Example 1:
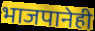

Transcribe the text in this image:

भाजपानेही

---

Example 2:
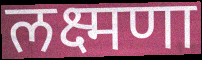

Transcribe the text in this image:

लक्ष्मणा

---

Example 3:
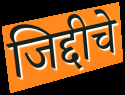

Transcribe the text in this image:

जिद्दीचे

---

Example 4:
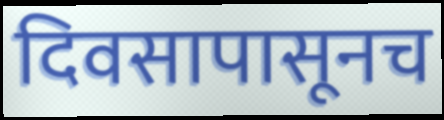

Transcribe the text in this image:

दिवसापासूनच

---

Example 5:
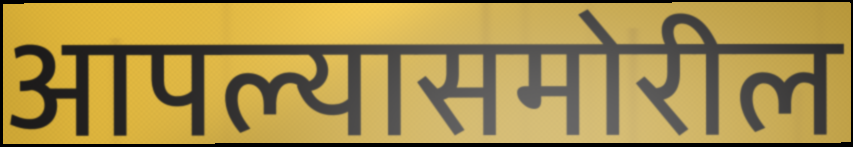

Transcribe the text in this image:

आपल्यासमोरील